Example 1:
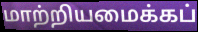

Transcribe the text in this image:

மாற்றியமைக்கப்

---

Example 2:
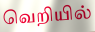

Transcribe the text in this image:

வெறியில்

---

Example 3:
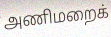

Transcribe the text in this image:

அணிமறைக்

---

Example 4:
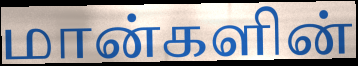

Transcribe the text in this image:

மான்களின்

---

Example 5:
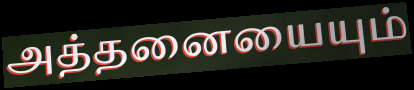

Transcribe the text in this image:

அத்தனையையும்